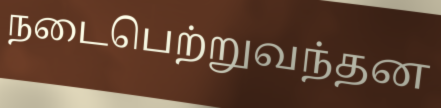
நடைபெற்றுவந்தன